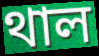
থাল